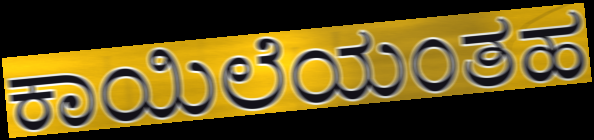
ಕಾಯಿಲೆಯಂತಹ